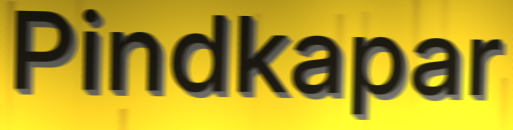
Pindkapar